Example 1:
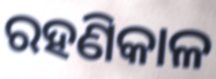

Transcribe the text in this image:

ରହଣିକାଳ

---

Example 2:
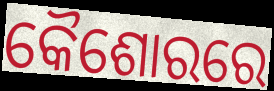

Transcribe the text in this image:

କୈଶୋରରେ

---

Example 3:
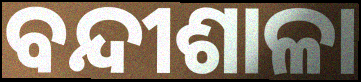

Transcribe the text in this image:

ବନ୍ଦୀଶାଳା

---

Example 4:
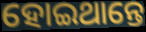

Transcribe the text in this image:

ହୋଇଥାନ୍ତେ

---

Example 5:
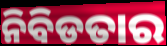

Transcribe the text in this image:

ନିବିଡତାର